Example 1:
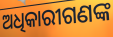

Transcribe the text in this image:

ଅଧିକାରୀଗଣଙ୍କ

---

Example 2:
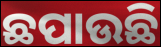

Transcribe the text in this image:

ଛପାଉଛି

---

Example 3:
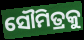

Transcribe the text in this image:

ସୌମିତ୍ରକୁ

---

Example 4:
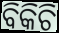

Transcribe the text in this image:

ବିକିଚି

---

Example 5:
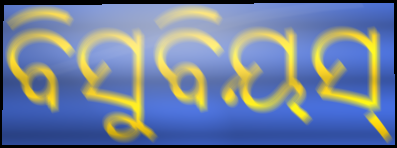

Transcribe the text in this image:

ବିସୁବିୟସ୍